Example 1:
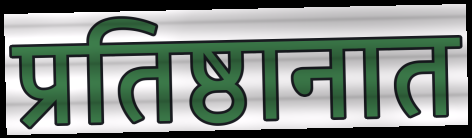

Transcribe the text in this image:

प्रतिष्ठानात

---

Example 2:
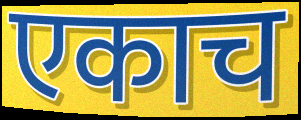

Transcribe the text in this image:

एकाच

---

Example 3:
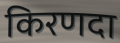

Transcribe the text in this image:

किरणदा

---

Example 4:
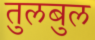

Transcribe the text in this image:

तुलबुल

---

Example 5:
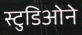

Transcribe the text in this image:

स्टुडिओने